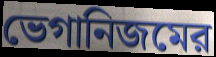
ভেগানিজমের